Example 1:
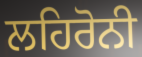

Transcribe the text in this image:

ਲਹਿਰੋਨੀ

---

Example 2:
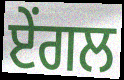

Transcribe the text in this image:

ਏਂਗਲ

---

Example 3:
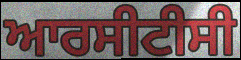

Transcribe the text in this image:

ਆਰਸੀਟੀਸੀ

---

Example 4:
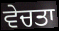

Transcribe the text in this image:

ਵੇਚਤਾ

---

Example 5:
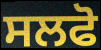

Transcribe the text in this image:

ਸਲਫੋ